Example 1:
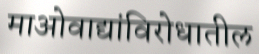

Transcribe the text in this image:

माओवाद्यांविरोधातील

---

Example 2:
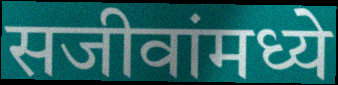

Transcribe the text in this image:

सजीवांमध्ये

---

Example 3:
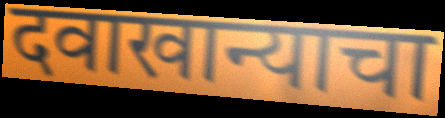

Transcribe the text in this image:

दवाखान्याचा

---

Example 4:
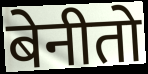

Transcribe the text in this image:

बेनीतो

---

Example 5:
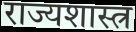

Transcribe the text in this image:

राज्यशास्त्र